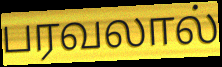
பரவலால்